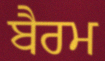
ਬੈਰਮ